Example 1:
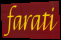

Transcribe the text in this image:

farati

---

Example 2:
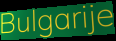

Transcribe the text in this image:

Bulgarije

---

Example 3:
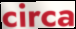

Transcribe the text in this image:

circa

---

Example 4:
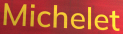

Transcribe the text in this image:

Michelet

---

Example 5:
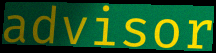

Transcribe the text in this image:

advisor